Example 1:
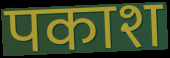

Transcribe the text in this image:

पकाश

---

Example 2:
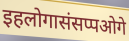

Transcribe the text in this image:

इहलोगासंसप्पओगे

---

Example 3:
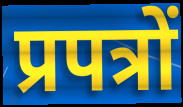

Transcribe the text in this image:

प्रपत्रों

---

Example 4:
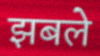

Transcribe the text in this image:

झबले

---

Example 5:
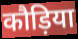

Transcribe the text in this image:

कौड़िया